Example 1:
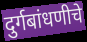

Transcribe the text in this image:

दुर्गबांधणीचे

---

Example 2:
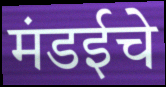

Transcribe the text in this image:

मंडईचे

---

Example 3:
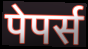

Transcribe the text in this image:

पेपर्स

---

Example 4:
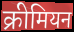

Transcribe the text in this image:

क्रीमियन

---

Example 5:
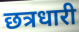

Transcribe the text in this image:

छत्रधारी